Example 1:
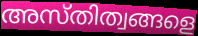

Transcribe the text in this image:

അസ്തിത്വങ്ങളെ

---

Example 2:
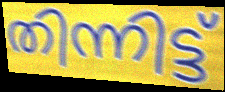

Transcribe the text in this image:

തിന്നിട്ട്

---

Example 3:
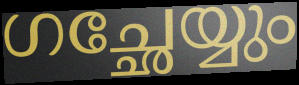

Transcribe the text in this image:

ഗച്ഛേയ്യും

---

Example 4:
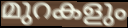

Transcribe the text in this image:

മുറകളും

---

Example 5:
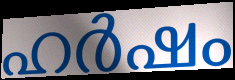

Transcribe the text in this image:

ഹർഷം